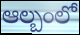
ఆల్బంలో